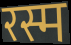
रस्म